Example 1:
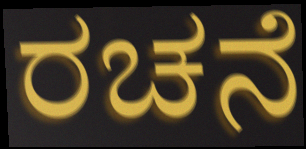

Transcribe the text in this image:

ರಚನೆ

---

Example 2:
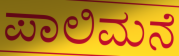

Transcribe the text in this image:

ಪಾಲಿಮನೆ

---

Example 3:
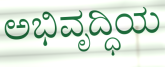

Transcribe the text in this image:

ಅಭಿವೃದ್ಧಿಯ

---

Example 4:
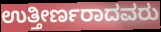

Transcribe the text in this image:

ಉತ್ತೀರ್ಣರಾದವರು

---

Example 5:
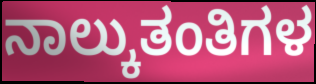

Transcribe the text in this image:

ನಾಲ್ಕುತಂತಿಗಳ